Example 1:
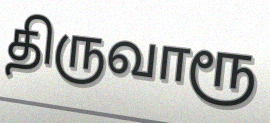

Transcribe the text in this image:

திருவாரூ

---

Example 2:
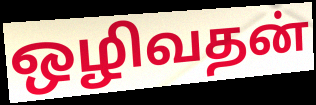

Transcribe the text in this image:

ஒழிவதன்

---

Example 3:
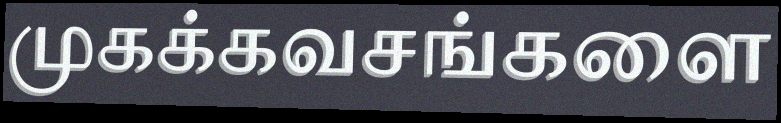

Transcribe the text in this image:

முகக்கவசங்களை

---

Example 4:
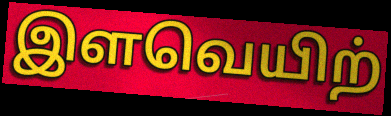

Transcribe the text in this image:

இளவெயிற்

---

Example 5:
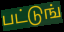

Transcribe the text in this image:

பட்டுங்